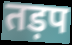
तड़प